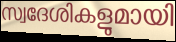
സ്വദേശികളുമായി